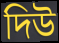
দিউ